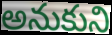
అనుకుని